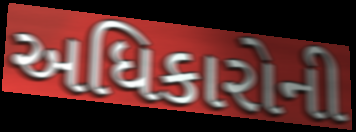
અધિકારોની